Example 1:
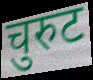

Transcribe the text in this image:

चुरुट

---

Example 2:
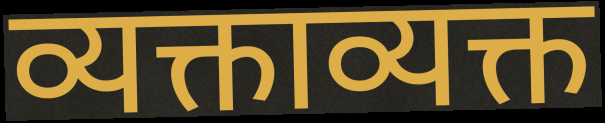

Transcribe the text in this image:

व्यक्ताव्यक्त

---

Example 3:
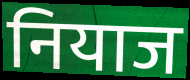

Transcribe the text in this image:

नियाज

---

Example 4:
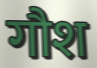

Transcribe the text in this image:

गौश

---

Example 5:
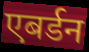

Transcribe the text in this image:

एबर्डन